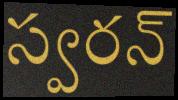
స్వరన్